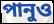
পানুও